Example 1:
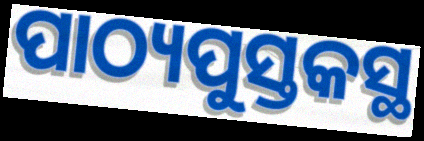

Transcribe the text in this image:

ପାଠ୍ୟପୁସ୍ତକସ୍ଥ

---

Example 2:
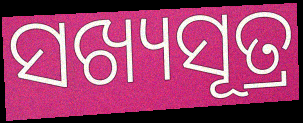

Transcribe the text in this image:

ସଖ୍ୟସୂତ୍ର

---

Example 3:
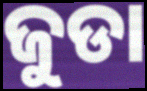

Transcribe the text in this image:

ଜୁଡା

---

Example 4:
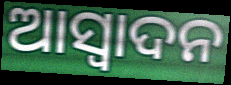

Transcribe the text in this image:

ଆସ୍ଵାଦନ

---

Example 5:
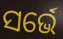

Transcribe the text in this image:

ସର୍ଭେ